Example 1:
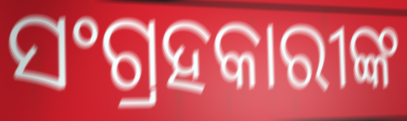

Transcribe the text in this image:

ସଂଗ୍ରହକାରୀଙ୍କ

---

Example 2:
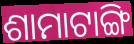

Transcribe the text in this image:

ଶାମାଟାଙ୍ଗି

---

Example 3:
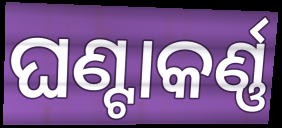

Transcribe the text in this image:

ଘଣ୍ଟାକର୍ଣ୍ଣ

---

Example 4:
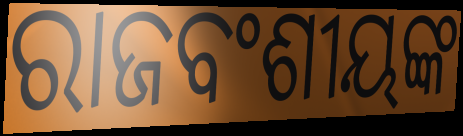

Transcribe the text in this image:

ରାଜବଂଶୀୟଙ୍କ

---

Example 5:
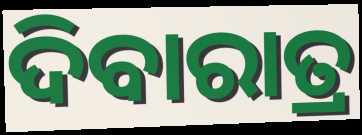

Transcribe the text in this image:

ଦିବାରାତ୍ର